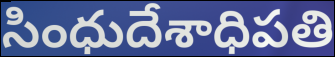
సింధుదేశాధిపతి